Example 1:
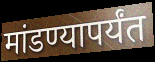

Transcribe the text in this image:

मांडण्यापर्यंत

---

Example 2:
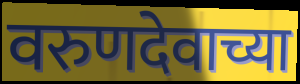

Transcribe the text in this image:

वरुणदेवाच्या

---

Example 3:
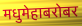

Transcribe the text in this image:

मधुमेहाबरोबर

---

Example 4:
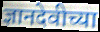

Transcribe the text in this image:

ज्ञानदेवीच्या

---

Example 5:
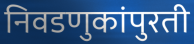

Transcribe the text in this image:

निवडणुकांपुरती